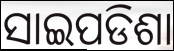
ସାଇପଡିଶା